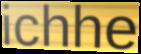
ichhe